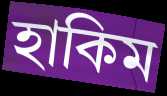
হাকিম